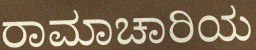
ರಾಮಾಚಾರಿಯ